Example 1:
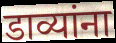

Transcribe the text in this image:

डाव्यांना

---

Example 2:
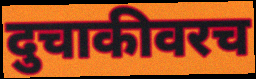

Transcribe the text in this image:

दुचाकीवरच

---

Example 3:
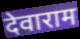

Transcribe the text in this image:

देवाराम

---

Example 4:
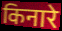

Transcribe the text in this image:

किनारे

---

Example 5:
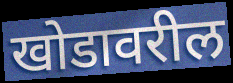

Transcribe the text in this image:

खोडावरील